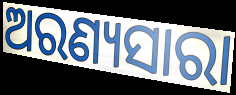
ଅରଣ୍ୟସାରା